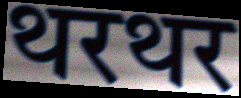
थरथर